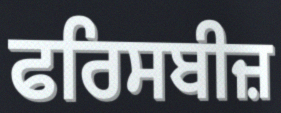
ਫਰਿਸਬੀਜ਼